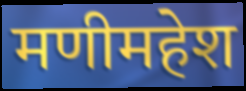
मणीमहेश